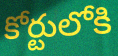
కోర్టులోకి